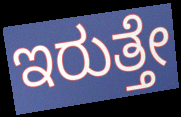
ಇರುತ್ತೇ